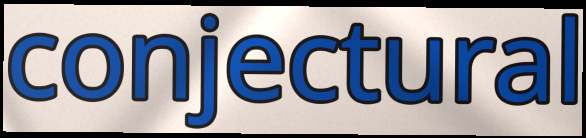
conjectural